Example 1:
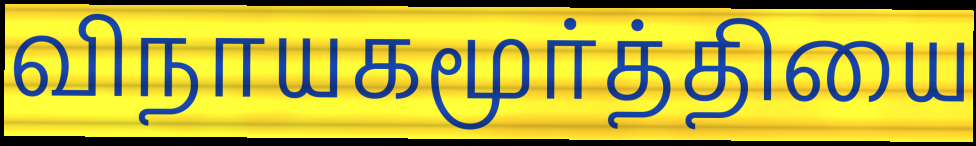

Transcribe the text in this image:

விநாயகமூர்த்தியை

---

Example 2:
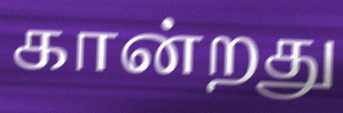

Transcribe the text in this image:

கான்றது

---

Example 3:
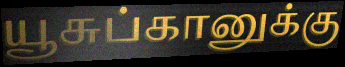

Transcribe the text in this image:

யூசுப்கானுக்கு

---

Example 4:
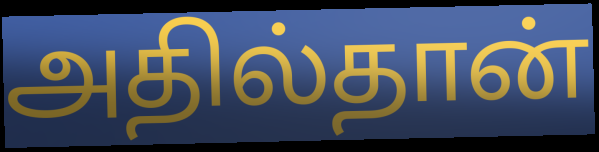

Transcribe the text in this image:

அதில்தான்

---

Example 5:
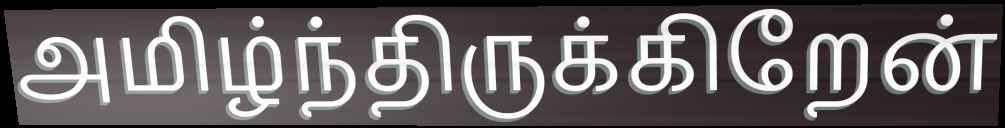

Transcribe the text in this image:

அமிழ்ந்திருக்கிறேன்